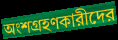
অংশগ্রহণকারীদের